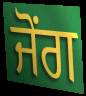
ਜੋਂਗ